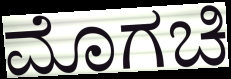
ಮೊಗಚಿ